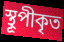
স্থূপীকৃত